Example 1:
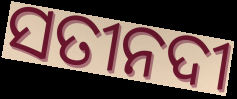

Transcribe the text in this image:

ସତୀନଦୀ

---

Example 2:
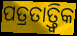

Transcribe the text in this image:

ପତ୍ରତାତ୍ତ୍ୱିକ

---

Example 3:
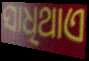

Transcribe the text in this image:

ସାଧିଥାଏ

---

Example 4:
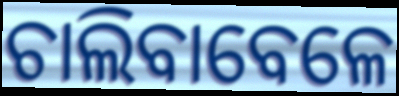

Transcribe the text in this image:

ଚାଲିବାବେଳେ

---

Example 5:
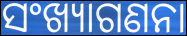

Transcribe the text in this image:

ସଂଖ୍ୟାଗଣନା